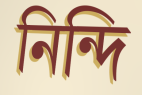
নিন্দি